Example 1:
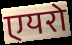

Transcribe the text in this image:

एयरो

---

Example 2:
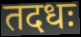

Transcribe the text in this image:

तदधः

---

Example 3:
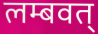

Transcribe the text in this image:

लम्बवत्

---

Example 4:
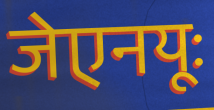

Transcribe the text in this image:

जेएनयूः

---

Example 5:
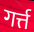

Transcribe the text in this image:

गर्त्त